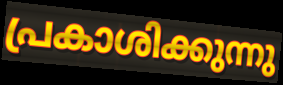
പ്രകാശിക്കുന്നു